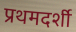
प्रथमदर्शी